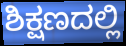
ಶಿಕ್ಷಣದಲ್ಲಿ